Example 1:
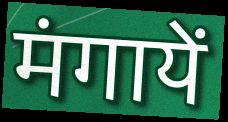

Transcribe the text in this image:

मंगायें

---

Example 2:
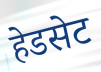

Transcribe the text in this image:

हेडसेट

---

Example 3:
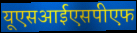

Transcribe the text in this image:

यूएसआईएसपीएफ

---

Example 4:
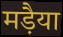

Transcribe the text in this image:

मड़ैया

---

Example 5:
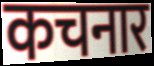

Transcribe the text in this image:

कचनार